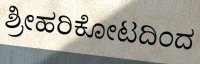
ಶ್ರೀಹರಿಕೋಟದಿಂದ